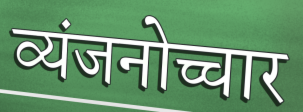
व्यंजनोच्चार